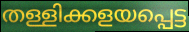
തള്ളിക്കളയപ്പെട്ട